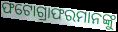
ଫଟୋଗ୍ରାଫରମାନଙ୍କୁ